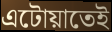
এটোয়াতেই